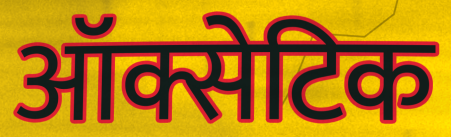
ऑक्सेटिक